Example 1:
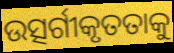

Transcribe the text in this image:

ଉତ୍ସର୍ଗୀକୃତତାକୁ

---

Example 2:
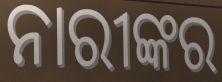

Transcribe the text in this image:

ନାରୀଙ୍କର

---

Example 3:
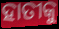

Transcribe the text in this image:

ହାତୀକୁ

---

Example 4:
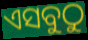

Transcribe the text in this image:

ଏସବୁଠୁ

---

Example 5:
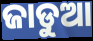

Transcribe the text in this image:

ଜାଡୁଆ